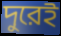
দুরেই